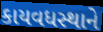
કાયવધસ્થાને